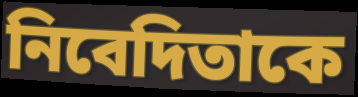
নিবেদিতাকে